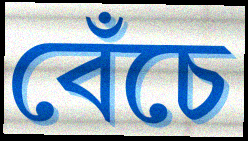
বেঁচে